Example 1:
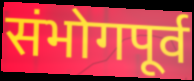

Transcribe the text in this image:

संभोगपूर्व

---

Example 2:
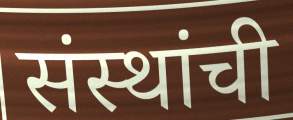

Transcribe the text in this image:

संस्थांची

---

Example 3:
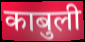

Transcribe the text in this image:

काबुली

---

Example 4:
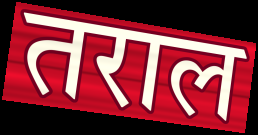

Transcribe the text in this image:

तराल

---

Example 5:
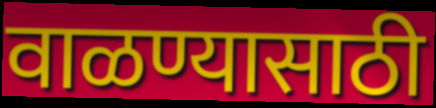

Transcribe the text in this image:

वाळण्यासाठी